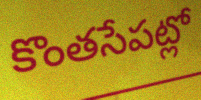
కొంతసేపట్లో